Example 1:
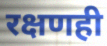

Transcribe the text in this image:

रक्षणही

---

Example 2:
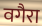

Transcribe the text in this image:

वगैरा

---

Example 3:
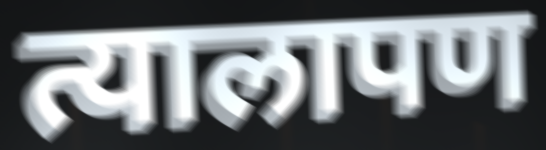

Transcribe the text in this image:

त्यालापण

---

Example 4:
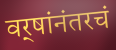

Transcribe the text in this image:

वर्षांनंतरचं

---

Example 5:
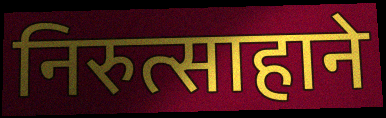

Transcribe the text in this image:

निरुत्साहाने